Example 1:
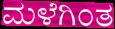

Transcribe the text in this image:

ಮಳೆಗಿಂತ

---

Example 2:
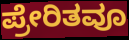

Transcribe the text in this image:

ಪ್ರೇರಿತವೂ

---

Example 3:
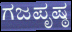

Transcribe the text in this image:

ಗಜಪೃಷ್ಠ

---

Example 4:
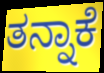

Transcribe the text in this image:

ತನ್ನಾಕೆ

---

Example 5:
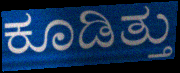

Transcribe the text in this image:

ಕೂಡಿತ್ತು